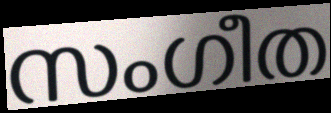
സംഗീത